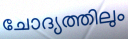
ചോദ്യത്തിലും